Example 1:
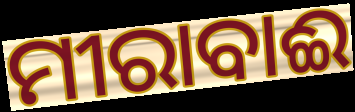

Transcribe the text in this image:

ମୀରାବାଈ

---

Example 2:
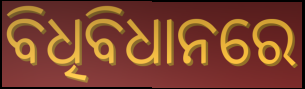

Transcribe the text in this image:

ବିଧିବିଧାନରେ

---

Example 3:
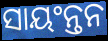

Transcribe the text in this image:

ସାୟଂନ୍ତନ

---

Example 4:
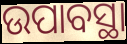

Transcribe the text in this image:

ଉପାବସ୍ଥା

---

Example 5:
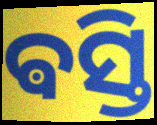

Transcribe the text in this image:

ଵସ୍ତି